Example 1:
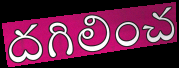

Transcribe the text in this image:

దగిలించ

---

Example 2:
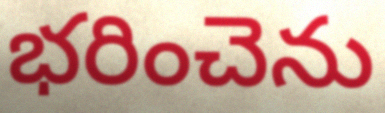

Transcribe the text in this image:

భరించెను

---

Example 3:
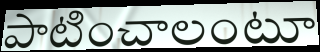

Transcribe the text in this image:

పాటించాలంటూ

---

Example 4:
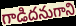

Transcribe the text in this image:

గాడిదనుగాని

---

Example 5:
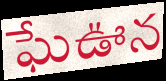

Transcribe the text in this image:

ఘేఊన